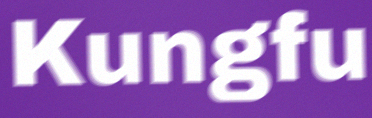
Kungfu